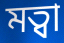
মত্বা